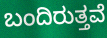
ಬಂದಿರುತ್ತವೆ